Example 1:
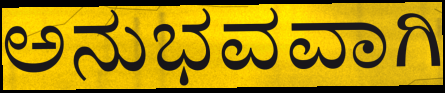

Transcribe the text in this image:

ಅನುಭವವಾಗಿ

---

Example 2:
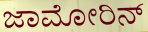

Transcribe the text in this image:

ಜಾಮೋರಿನ್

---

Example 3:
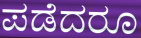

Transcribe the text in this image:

ಪಡೆದರೂ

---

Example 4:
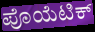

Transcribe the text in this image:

ಪೊಯೆಟಿಕ್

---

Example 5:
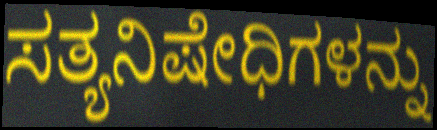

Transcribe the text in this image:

ಸತ್ಯನಿಷೇಧಿಗಳನ್ನು